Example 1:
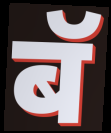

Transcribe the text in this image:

बॅ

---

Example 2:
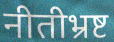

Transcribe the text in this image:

नीतीभ्रष्ट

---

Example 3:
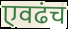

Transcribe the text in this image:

एवढंच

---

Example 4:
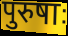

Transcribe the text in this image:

पुरुषाः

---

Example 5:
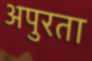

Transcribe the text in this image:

अपुरता